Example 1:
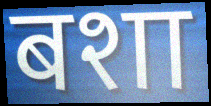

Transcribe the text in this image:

बशा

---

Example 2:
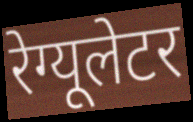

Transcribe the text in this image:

रेग्यूलेटर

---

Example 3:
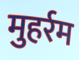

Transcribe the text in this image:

मुहर्रम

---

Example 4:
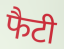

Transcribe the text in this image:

फैटी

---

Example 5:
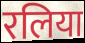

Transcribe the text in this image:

रलिया